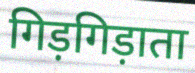
गिड़गिड़ाता